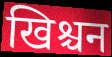
खिश्चन